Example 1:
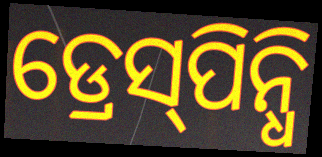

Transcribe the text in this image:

ଡ୍ରେସ୍‌ପିନ୍ଧି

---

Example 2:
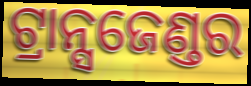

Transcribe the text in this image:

ଟ୍ରାନ୍ସଜେଣ୍ଡର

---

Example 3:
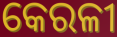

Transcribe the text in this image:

କେରଳୀ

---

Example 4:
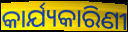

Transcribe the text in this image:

କାର୍ଯ୍ୟକାରିଣୀ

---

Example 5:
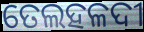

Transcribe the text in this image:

ତେଲହଳଦୀ